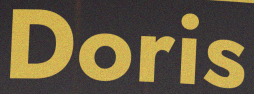
Doris